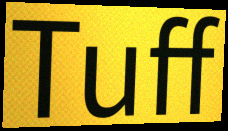
Tuff